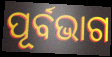
ପୂର୍ବଭାଗ